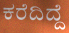
ಕರೆದಿದ್ದೆ